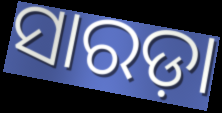
ସାରଡ଼ା